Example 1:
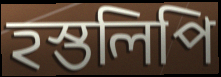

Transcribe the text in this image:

হস্তলিপি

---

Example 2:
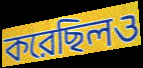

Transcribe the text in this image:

করেছিলও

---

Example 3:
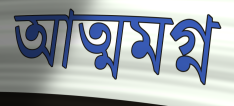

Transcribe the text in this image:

আত্মমগ্ন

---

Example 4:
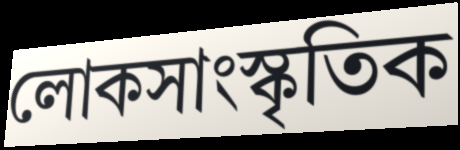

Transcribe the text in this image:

লোকসাংস্কৃতিক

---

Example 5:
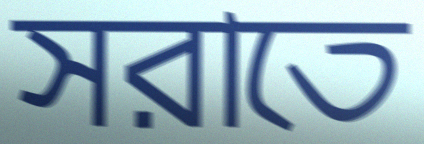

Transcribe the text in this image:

সরাতে